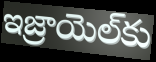
ఇజ్రాయెల్‌కు